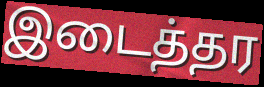
இடைத்தர